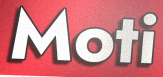
Moti